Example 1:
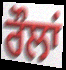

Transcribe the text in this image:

ਰੌਲਾਂ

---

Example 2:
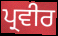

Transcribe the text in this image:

ਪ੍ਰਵੀਰ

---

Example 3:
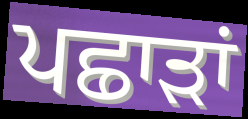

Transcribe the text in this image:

ਪਛਾੜਾਂ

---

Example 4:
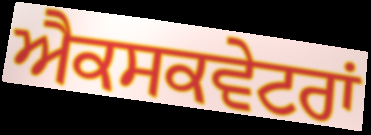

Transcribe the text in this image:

ਐਕਸਕਵੇਟਰਾਂ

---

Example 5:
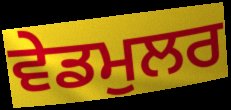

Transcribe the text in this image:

ਵੇਡਮੁਲਰ